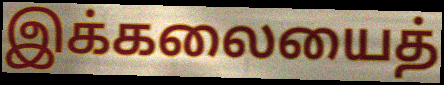
இக்கலையைத்